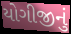
યોગીજીનું